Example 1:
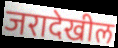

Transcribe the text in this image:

जरादेखील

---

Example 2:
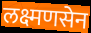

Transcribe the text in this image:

लक्ष्मणसेन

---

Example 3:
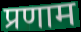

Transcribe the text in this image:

प्रणाम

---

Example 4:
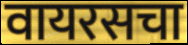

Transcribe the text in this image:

वायरसचा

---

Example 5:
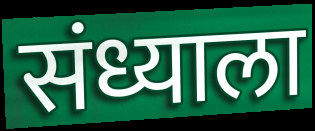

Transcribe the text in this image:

संध्याला